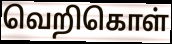
வெறிகொள்